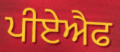
ਪੀਏਐਫ